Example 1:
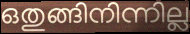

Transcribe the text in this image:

ഒതുങ്ങിനിന്നില്ല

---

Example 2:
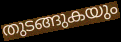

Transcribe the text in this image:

തുടങ്ങുകയും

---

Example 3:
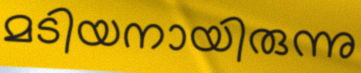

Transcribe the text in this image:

മടിയനായിരുന്നു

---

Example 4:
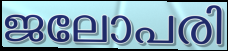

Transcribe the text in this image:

ജലോപരി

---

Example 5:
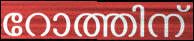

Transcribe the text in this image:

റോത്തിന്